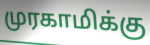
முரகாமிக்கு